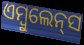
ଏମ୍ବୁଲେନ୍‌ସ